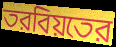
তরবিয়তের